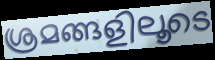
ശ്രമങ്ങളിലൂടെ